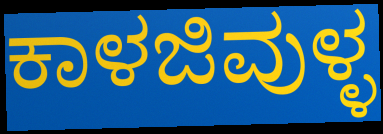
ಕಾಳಜಿವುಳ್ಳ